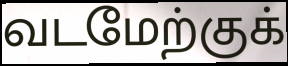
வடமேற்குக்